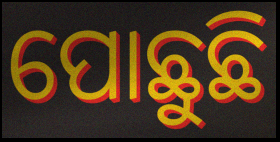
ପୋଛୁଛି